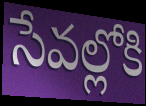
సేవల్లోకి